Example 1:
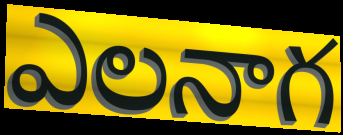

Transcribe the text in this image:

ఎలనాగ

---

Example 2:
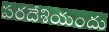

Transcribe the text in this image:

పరదేశియందు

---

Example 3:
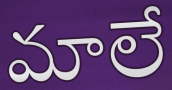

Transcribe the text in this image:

మాలే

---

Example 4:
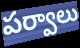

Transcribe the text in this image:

పర్వాలు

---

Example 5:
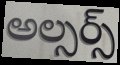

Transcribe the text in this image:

అల్సర్స్